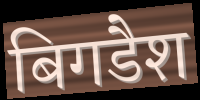
बिगडैश